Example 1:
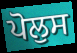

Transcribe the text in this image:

ਪੋਲੁਸ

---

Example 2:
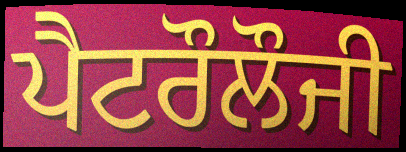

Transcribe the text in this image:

ਪੈਟਰੌਲੌਜੀ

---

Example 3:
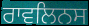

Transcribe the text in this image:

ਰਾਵਲਿਨਸ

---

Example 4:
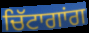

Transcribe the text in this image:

ਚਿੱਟਾਗਾਂਗ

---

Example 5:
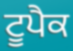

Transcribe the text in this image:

ਟੂਪੈਕ